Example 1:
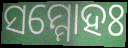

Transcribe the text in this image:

ସମ୍ମୋହଃ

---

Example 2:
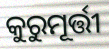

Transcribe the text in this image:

କୁରୁମୂର୍ତ୍ତୀ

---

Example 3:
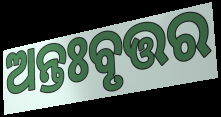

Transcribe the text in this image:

ଅନ୍ତଃବୃତ୍ତର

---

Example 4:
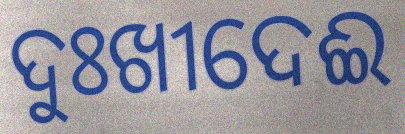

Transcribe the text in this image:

ଦୁଃଖୀଦେଈ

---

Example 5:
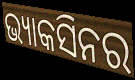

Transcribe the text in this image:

ଭ୍ୟାକସିନର